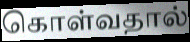
கொள்வதால்